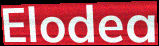
Elodea